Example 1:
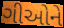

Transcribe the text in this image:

ગીઓને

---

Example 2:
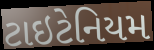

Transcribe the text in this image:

ટાઇટેનિયમ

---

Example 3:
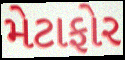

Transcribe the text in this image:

મેટાફોર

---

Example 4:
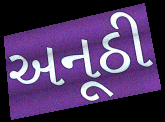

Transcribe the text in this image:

અનૂઠી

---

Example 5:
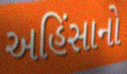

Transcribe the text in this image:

અહિંસાનો